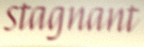
stagnant